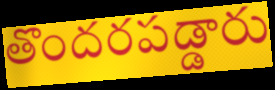
తొందరపడ్డారు